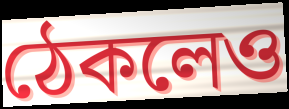
ঠেকলেও